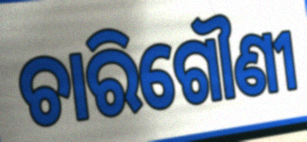
ଚାରିଗୌଣୀ